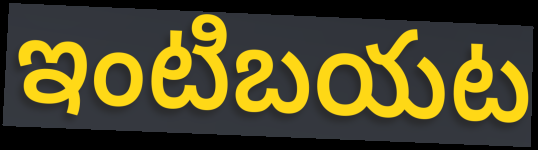
ఇంటిబయట